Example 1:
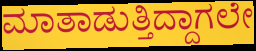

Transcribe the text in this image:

ಮಾತಾಡುತ್ತಿದ್ದಾಗಲೇ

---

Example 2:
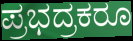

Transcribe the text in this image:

ಪ್ರಭದ್ರಕರೂ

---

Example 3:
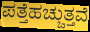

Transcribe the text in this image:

ಪತ್ತೆಹಚ್ಚುತ್ತವೆ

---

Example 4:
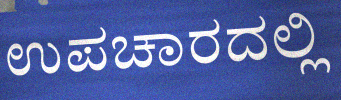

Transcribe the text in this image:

ಉಪಚಾರದಲ್ಲಿ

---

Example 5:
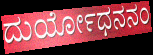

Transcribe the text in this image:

ದುರ್ಯೋಧನನಂ